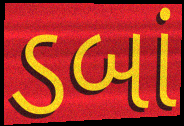
ડબાં